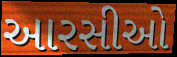
આરસીઓ